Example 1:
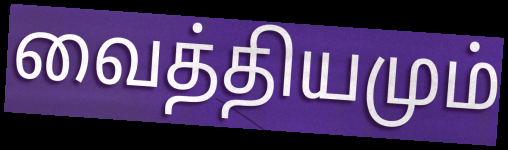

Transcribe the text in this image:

வைத்தியமும்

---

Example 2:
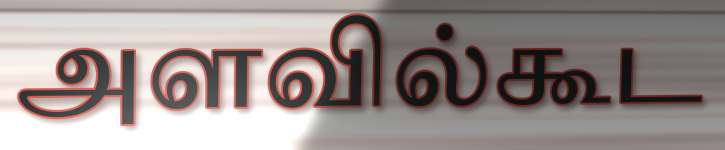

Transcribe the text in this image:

அளவில்கூட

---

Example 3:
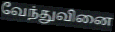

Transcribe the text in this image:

வேந்துவினை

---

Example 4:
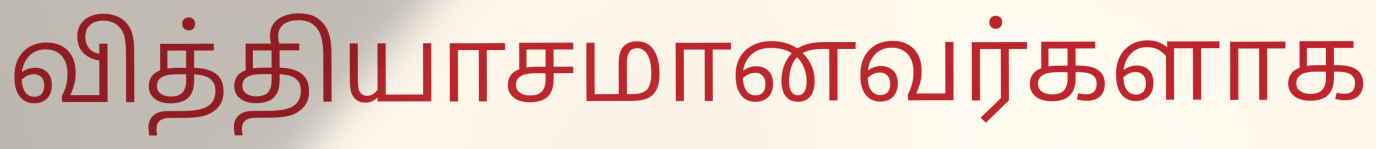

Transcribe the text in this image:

வித்தியாசமானவர்களாக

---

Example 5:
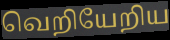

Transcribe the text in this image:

வெறியேறிய